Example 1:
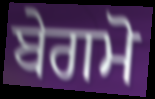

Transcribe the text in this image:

ਬੇਗਮੋ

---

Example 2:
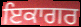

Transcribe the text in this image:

ਇਕਾਗਰ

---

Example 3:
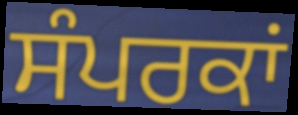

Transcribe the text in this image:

ਸੰਪਰਕਾਂ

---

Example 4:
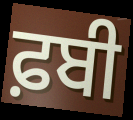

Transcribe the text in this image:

ਫ਼ਬੀ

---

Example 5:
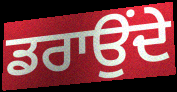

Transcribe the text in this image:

ਡਰਾਉਂਦੇ